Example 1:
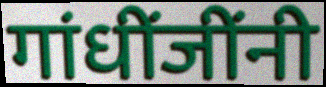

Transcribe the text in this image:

गांधींजींनी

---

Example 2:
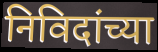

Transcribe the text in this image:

निविदांच्या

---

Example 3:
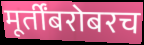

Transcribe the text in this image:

मूर्तींबरोबरच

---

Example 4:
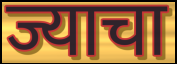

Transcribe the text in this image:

ज्याचा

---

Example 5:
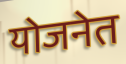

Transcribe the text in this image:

योजनेत